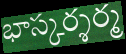
భాస్కర్శర్మ